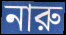
নারু